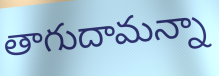
తాగుదామన్నా